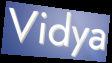
Vidya